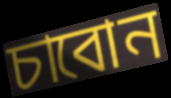
চাবোন